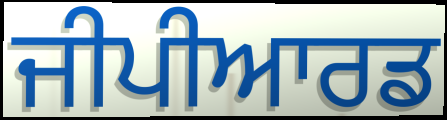
ਜੀਪੀਆਰਡ